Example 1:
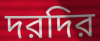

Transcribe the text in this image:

দরদির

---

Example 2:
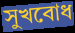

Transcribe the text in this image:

সুখবোধ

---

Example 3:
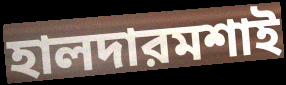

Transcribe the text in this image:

হালদারমশাই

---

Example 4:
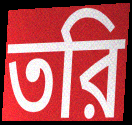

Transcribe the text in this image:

তরি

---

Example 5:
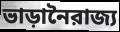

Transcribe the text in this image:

ভাড়ানৈরাজ্য